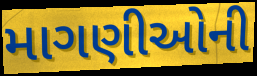
માગણીઓની